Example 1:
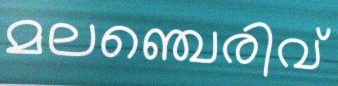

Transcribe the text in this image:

മലഞ്ചെരിവ്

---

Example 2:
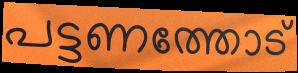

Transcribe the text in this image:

പട്ടണത്തോട്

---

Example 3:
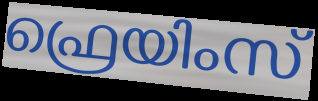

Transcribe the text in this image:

ഫ്രെയിംസ്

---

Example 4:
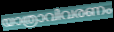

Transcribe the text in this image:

യാത്രാവിവരണം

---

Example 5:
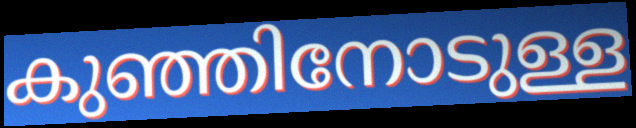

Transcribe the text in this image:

കുഞ്ഞിനോടുള്ള